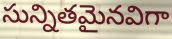
సున్నితమైనవిగా